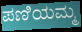
ಪಣಿಯಮ್ಮ